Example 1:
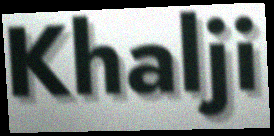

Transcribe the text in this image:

Khalji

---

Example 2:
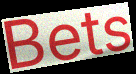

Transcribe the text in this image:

Bets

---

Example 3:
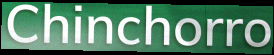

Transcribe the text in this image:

Chinchorro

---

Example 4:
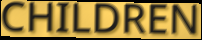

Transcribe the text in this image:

CHILDREN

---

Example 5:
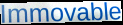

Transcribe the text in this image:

Immovable